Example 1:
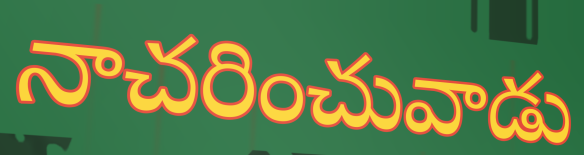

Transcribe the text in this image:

నాచరించువాడు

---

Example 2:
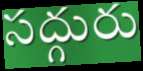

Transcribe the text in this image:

సద్గురు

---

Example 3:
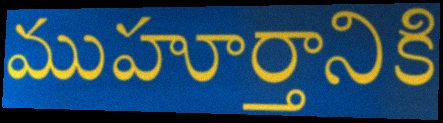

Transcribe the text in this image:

ముహూర్తానికి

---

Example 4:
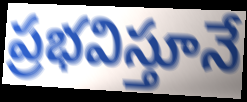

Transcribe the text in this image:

ప్రభవిస్తూనే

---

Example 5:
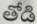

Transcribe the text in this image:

తోడి